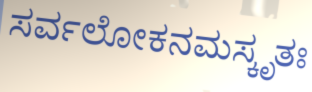
ಸರ್ವಲೋಕನಮಸ್ಕೃತಃ